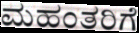
ಮಹಂತರಿಗೆ